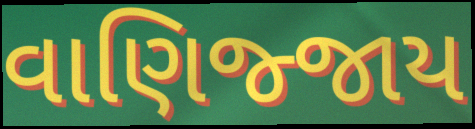
વાણિજ્જાય